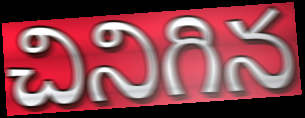
చినిగిన